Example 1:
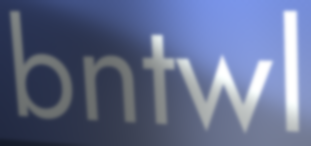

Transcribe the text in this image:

bntwl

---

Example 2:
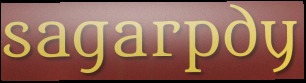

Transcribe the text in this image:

sagarpdy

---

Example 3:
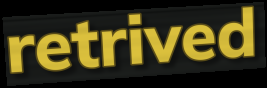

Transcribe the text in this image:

retrived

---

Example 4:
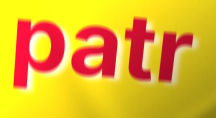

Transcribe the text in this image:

patr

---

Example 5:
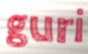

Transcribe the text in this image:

guri